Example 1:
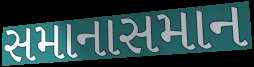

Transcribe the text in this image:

સમાનાસમાન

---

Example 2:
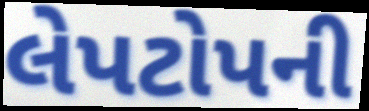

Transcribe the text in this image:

લેપટોપની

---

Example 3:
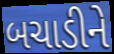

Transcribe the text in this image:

બચાડીને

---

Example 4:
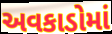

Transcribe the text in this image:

અવકાડોમાં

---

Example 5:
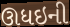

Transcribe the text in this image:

ઊધઇની